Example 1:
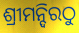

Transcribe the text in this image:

ଶ୍ରୀମନ୍ଦିରଠୁ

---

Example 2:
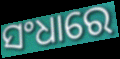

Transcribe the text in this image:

ସଂଧାରେ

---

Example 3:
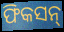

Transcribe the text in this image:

ଫିକସନ୍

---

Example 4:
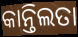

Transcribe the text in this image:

କାନ୍ତିଲତା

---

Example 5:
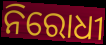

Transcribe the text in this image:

ନିରୋଧୀ